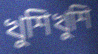
খুশিখুশি